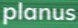
planus